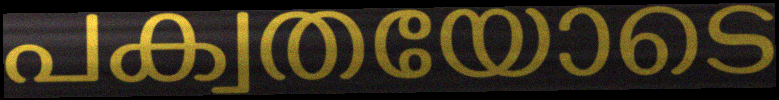
പക്വതയോടെ